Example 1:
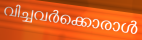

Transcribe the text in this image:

വിച്ചവർക്കൊരാൾ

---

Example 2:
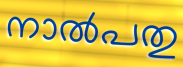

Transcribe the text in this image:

നാൽപതു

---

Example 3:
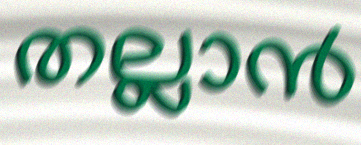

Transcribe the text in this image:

തല്ലാൻ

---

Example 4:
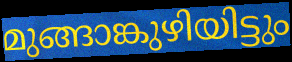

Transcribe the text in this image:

മുങ്ങാങ്കുഴിയിട്ടും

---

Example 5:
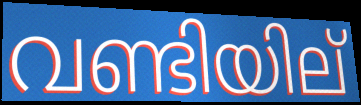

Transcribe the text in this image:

വണ്ടിയില്